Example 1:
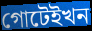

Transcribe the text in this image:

গোটেইখন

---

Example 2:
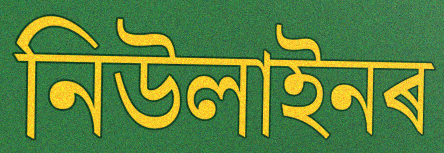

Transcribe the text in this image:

নিউলাইনৰ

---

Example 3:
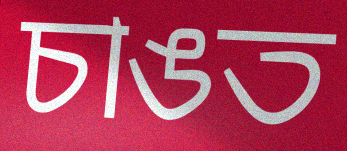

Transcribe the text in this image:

চাঙত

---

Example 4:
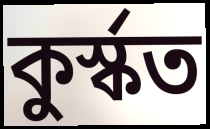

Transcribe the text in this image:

কুৰ্স্কত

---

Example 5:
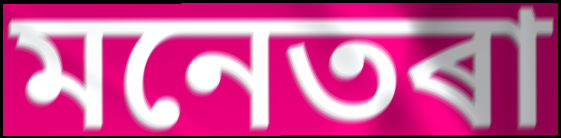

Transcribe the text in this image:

মনেতৰা